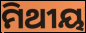
ମିଥୀୟ